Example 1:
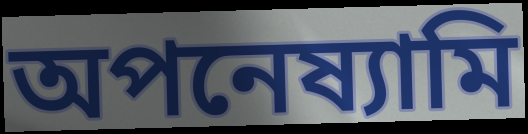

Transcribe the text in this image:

অপনেষ্যামি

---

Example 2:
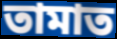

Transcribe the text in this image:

তামাত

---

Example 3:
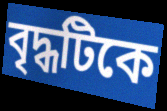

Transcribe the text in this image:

বৃদ্ধটিকে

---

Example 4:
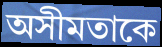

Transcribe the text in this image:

অসীমতাকে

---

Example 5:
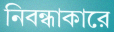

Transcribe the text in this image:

নিবন্ধাকারে